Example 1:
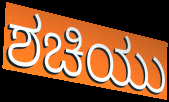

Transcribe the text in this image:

ಶಚಿಯು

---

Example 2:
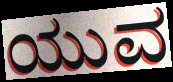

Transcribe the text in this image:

ಯುವ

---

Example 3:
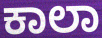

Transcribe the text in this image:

ಕಾಲಾ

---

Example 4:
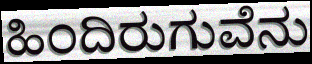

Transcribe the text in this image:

ಹಿಂದಿರುಗುವೆನು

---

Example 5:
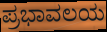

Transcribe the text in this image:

ಪ್ರಭಾವಲಯ